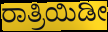
ರಾತ್ರಿಯಿಡೀ